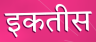
इकतीस